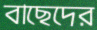
বাছেদের